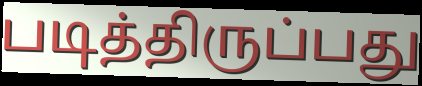
படித்திருப்பது